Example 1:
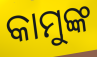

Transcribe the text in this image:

କାମୁଙ୍କ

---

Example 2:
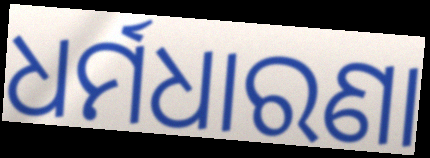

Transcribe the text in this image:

ଧର୍ମଧାରଣା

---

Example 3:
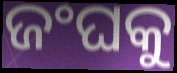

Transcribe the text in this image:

ଜଂଘକୁ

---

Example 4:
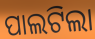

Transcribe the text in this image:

ପାଲଟିଲା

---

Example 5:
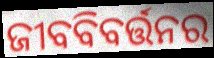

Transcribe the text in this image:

ଜୀବବିବର୍ତ୍ତନର